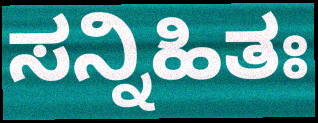
ಸನ್ನಿಹಿತಃ